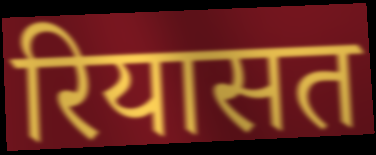
रियासत